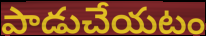
పాడుచేయటం